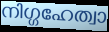
നിഗ്ഗഹേത്വാ